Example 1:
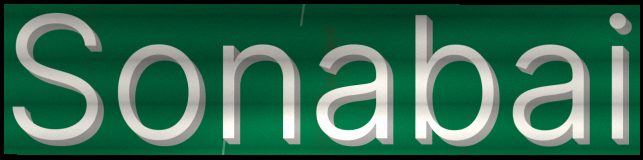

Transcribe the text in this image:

Sonabai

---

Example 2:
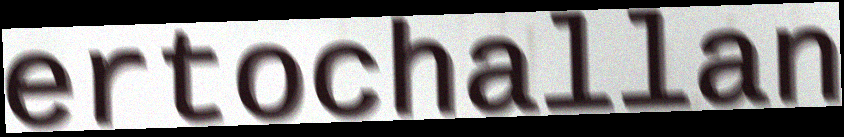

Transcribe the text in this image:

ertochallan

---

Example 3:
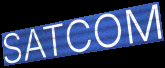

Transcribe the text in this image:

SATCOM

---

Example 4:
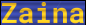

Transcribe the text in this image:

Zaina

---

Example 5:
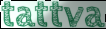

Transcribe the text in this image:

tattva